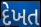
દેખત